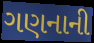
ગણનાની